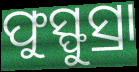
ଫୁସ୍ଫୁସ୍ରା